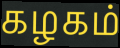
கழகம்